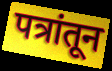
पत्रांतून